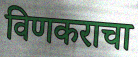
विणकराचा